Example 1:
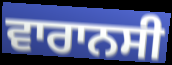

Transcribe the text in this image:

ਵਾਰਾਨਸੀ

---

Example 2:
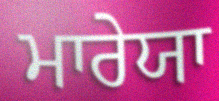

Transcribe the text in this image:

ਮਾਰੇਯਾ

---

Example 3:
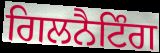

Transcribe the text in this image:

ਗਿਲਨੈਟਿੰਗ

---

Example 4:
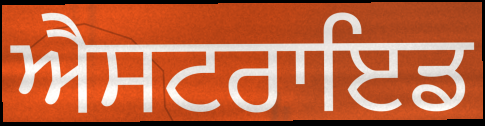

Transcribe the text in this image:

ਐਸਟਰਾਇਡ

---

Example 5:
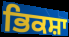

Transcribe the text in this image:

ਭਿਕਸ਼ਾ